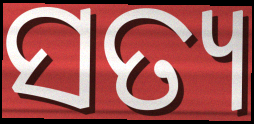
ସତ୍ୟ